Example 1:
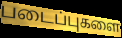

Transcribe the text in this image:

படைப்புகளை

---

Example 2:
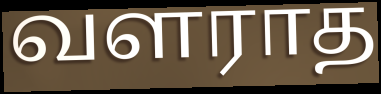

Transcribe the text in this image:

வளராத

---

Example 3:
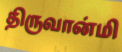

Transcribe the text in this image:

திருவான்மி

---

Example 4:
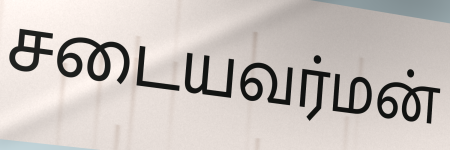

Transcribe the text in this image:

சடையவர்மன்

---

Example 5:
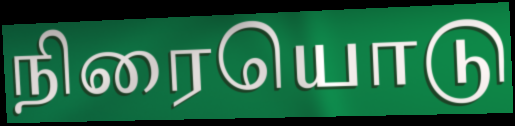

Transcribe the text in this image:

நிரையொடு